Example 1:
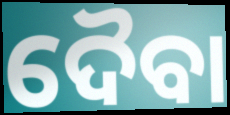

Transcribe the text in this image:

ଦୈବା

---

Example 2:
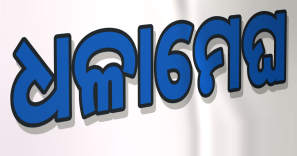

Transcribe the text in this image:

ଧଳାମେଘ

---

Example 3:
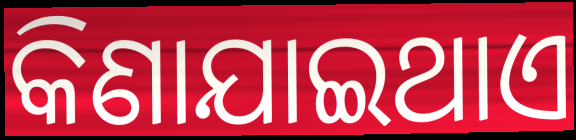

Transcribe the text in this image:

କିଣାଯାଇଥାଏ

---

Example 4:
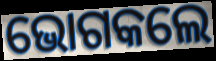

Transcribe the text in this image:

ଭୋଗକଲେ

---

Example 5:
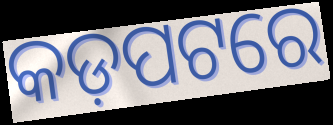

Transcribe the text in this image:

କଡ଼ପଟରେ